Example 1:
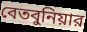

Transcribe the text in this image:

বেতবুনিয়ার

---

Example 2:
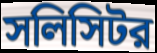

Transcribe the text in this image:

সলিসিটর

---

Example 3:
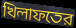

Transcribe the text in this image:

খিলাফতের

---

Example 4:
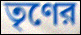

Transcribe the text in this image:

তৃণের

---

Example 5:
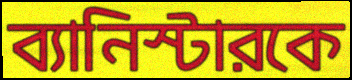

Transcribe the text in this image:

ব্যানিস্টারকে